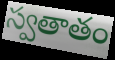
స్వతాతం